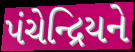
પંચેન્દ્રિયને